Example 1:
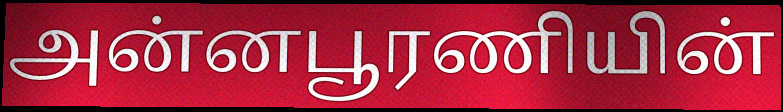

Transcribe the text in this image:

அன்னபூரணியின்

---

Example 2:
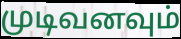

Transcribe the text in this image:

முடிவனவும்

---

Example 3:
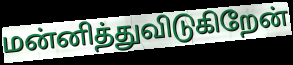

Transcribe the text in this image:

மன்னித்துவிடுகிறேன்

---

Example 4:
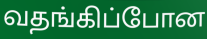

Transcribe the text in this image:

வதங்கிப்போன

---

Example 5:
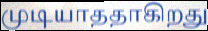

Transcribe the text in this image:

முடியாததாகிறது